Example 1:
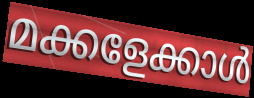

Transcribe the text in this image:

മക്കളേക്കാൾ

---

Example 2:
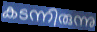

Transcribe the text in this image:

കടന്നിരുന്നു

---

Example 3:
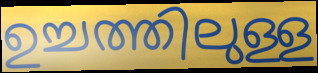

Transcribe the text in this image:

ഉച്ചത്തിലുള്ള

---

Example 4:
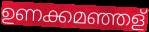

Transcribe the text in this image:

ഉണക്കമഞ്ഞള്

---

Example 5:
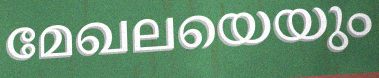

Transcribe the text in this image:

മേഖലയെയും